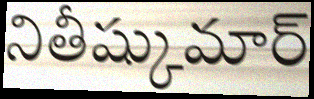
నితీష్కుమార్